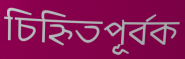
চিহ্নিতপূর্বক